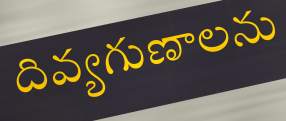
దివ్యగుణాలను